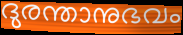
ദുരന്താനുഭവം